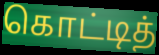
கொட்டித்